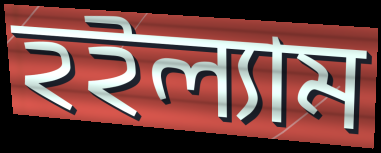
হইল্যাম